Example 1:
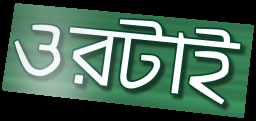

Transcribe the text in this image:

ওরটাই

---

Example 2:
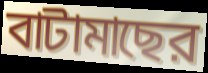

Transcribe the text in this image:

বাটামাছের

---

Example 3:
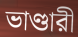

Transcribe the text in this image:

ভাণ্ডারী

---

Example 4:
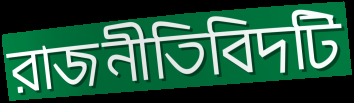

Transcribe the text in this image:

রাজনীতিবিদটি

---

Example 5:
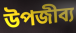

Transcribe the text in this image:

উপজীব্য